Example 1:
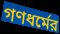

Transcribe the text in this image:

গণধর্মের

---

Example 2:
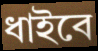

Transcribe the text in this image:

ধাইবে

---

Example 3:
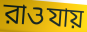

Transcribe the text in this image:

রাওযায়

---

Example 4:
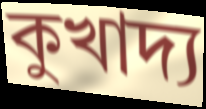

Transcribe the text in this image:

কুখাদ্য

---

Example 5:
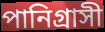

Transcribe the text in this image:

পানিগ্রাসী